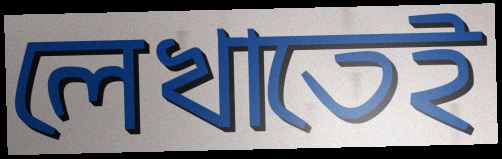
লেখাতেই